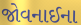
જોવનાઈના